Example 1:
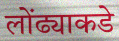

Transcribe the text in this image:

लोंढ्याकडे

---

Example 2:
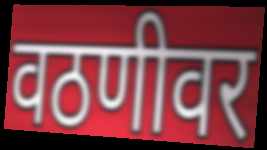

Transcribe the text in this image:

वठणीवर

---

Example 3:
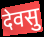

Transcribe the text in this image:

देवसु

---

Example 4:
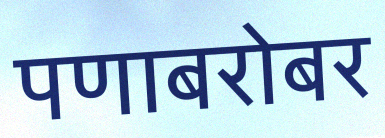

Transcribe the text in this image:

पणाबरोबर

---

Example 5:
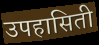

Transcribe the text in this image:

उपहासिती